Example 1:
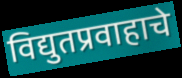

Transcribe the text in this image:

विद्युतप्रवाहाचे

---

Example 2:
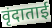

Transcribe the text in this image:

वृंदाताई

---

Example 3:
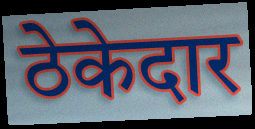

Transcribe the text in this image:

ठेकेदार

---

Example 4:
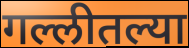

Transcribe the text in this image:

गल्लीतल्या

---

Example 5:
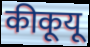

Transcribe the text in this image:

कीकूयू